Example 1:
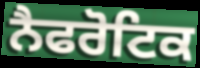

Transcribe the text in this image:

ਨੈਫਰੋਟਿਕ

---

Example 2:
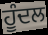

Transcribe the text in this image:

ਹੂੰਦਲ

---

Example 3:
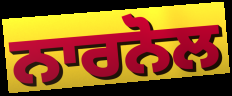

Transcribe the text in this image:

ਨਾਰਨੋਲ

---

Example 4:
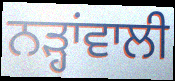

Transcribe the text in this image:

ਨੜ੍ਹਾਂਵਾਲੀ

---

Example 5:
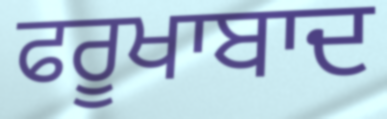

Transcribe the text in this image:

ਫਰੂਖਾਬਾਦ